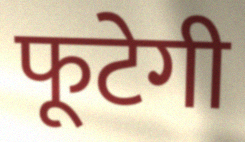
फूटेगी